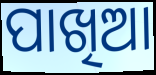
ପାଖିଆ